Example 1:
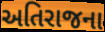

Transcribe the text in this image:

અતિરાજના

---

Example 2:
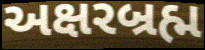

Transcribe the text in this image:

અક્ષરબ્રહ્મ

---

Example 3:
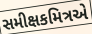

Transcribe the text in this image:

સમીક્ષકમિત્રએ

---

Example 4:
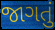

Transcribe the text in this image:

જાગતું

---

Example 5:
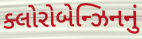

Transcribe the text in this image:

ક્લોરોબેન્ઝિનનું